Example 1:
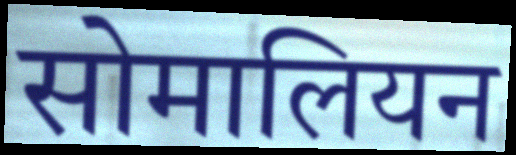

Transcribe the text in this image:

सोमालियन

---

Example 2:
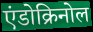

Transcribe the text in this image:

एंडोक्रिनोल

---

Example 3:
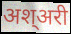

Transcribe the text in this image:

अश्अरी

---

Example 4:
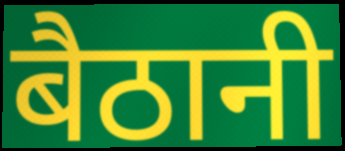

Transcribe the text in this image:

बैठानी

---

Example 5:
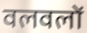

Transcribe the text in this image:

वलवलों